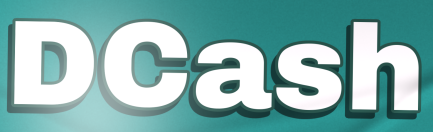
DCash